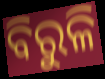
ବିରୁଳି